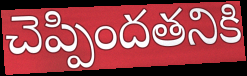
చెప్పిందతనికి